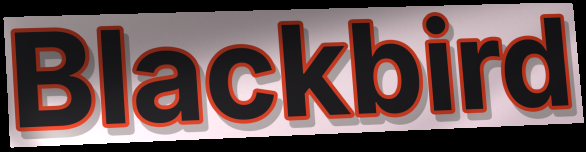
Blackbird